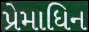
પ્રેમાધિન